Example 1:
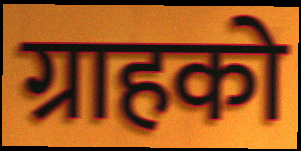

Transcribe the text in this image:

ग्राहको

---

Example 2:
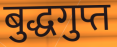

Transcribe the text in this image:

बुद्धगुप्त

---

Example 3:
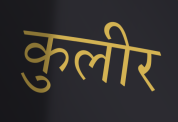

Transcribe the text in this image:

कुलीर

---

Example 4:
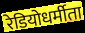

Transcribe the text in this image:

रेडियोधर्मीता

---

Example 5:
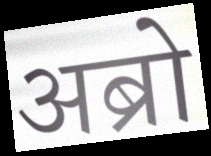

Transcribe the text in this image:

अब्रो